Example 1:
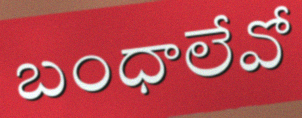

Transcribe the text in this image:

బంధాలేవో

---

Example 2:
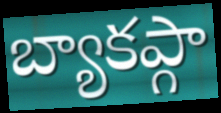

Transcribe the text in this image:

బ్యాకప్గా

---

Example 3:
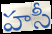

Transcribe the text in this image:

హసీ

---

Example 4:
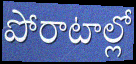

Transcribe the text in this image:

పోరాటాల్లో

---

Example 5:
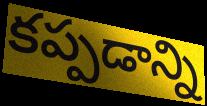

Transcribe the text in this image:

కప్పడాన్ని